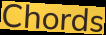
Chords